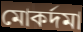
মোকৰ্দমা